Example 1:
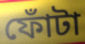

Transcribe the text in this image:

ফোঁটা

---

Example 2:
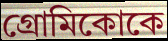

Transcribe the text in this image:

গ্রোমিকোকে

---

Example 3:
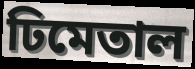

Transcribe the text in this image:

ঢিমেতাল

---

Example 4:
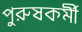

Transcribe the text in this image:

পুরুষকর্মী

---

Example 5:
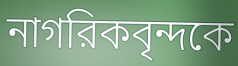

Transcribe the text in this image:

নাগরিকবৃন্দকে